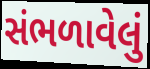
સંભળાવેલું